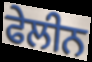
ਫੇਲੀਨ